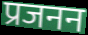
प्रजनन